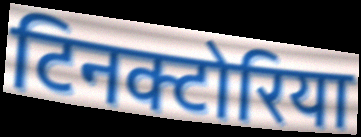
टिनक्टोरिया